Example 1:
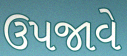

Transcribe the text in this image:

ઉપજાવે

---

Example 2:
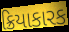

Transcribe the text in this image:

ક્રિયાકારક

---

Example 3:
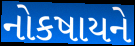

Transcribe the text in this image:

નોકષાયને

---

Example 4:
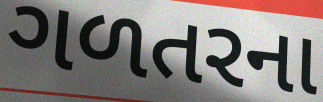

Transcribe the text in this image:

ગળતરના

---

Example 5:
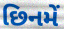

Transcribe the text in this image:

છિનમેં